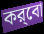
কর্‌বো